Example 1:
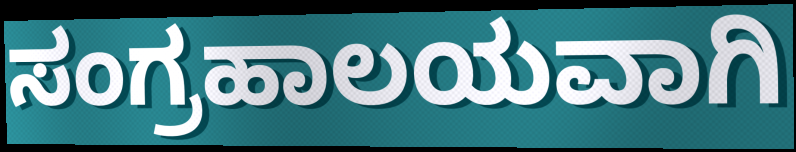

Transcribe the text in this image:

ಸಂಗ್ರಹಾಲಯವಾಗಿ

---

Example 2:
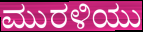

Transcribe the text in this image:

ಮುರಳಿಯು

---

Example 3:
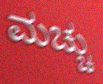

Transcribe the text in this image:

ಮಚ್ಚು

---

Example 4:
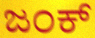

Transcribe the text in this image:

ಜಂಕ್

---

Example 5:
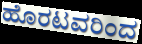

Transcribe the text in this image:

ಹೊರಟವರಿಂದ